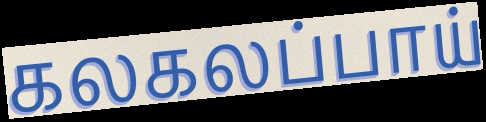
கலகலப்பாய்